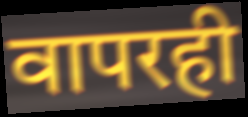
वापरही